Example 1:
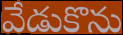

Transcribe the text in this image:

వేడుకొను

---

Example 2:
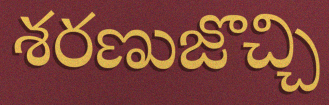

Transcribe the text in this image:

శరణుజొచ్చి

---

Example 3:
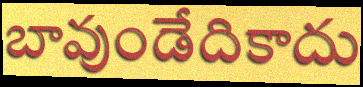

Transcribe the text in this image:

బావుండేదికాదు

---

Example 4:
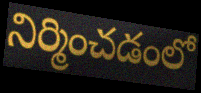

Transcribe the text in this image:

నిర్మించడంలో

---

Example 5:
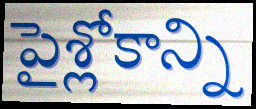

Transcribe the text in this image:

పైశ్లోకాన్ని